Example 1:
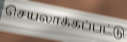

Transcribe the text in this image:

செயலாக்கப்பட்டு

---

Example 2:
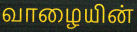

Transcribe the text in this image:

வாழையின்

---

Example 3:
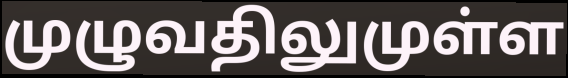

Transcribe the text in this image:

முழுவதிலுமுள்ள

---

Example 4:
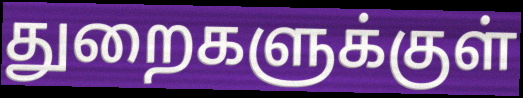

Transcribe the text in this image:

துறைகளுக்குள்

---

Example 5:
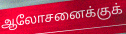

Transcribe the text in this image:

ஆலோசனைக்குக்